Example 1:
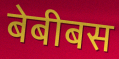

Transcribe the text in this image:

बेबीबस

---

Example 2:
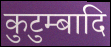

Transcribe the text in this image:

कुटुम्बादि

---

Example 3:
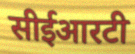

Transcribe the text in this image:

सीईआरटी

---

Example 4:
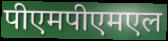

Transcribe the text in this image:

पीएमपीएमएल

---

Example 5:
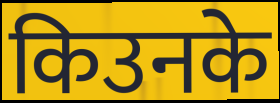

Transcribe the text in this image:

किउनके